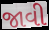
જાવી